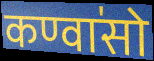
कण्वा॑सो